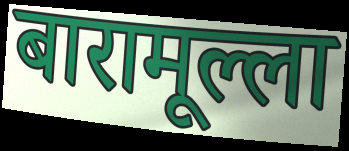
बारामूल्ला